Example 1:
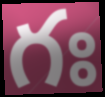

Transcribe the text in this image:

గః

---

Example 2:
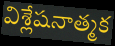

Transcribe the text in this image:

విశ్లేషనాత్మక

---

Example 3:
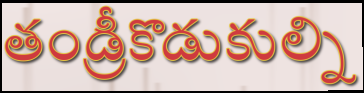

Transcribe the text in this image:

తండ్రీకొడుకుల్ని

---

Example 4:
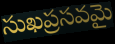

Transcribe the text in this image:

సుఖప్రసవమై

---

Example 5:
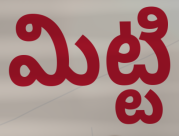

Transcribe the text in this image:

మిట్టి